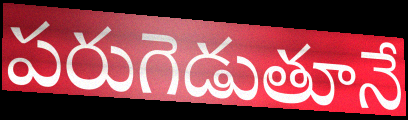
పరుగెడుతూనే